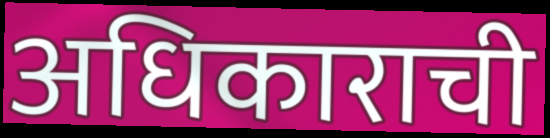
अधिकाराची